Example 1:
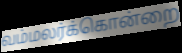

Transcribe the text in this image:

வம்மலர்க்கொன்றை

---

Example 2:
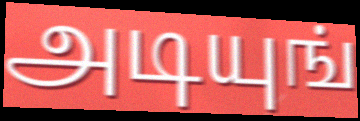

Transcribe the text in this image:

அடியுங்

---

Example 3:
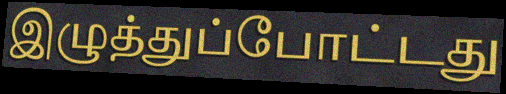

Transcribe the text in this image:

இழுத்துப்போட்டது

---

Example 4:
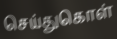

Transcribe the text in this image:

செய்துகொள்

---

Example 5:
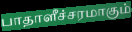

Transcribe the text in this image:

பாதாளீச்சரமாகும்